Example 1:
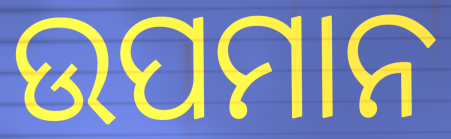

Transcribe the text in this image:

ଉପମାନ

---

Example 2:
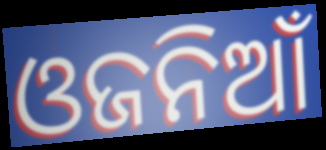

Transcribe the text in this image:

ଓଜନିଆଁ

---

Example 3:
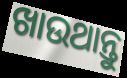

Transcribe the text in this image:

ଖାଉଥାନ୍ତୁ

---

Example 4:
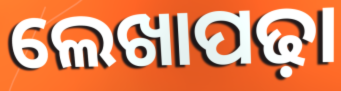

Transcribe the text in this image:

ଲେଖାପଢ଼ା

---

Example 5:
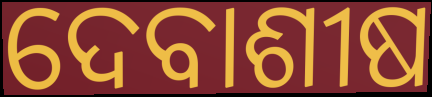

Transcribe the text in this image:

ଦେବାଶୀଷ